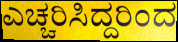
ಎಚ್ಚರಿಸಿದ್ದರಿಂದ